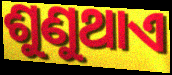
ଶୁଣୁଥାଏ